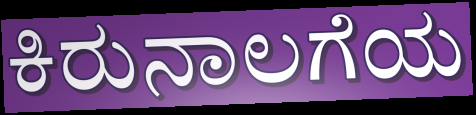
ಕಿರುನಾಲಗೆಯ